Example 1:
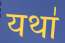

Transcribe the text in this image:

यथा॑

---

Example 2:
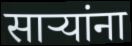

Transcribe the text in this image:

सार्‍यांना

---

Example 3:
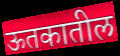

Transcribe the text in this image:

ऊतकातील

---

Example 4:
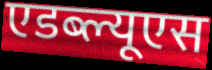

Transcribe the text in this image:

एडब्ल्यूएस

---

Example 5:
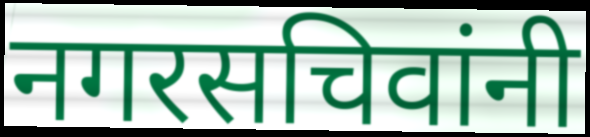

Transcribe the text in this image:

नगरसचिवांनी